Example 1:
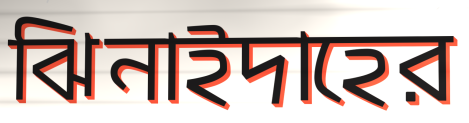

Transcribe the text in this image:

ঝিনাইদাহের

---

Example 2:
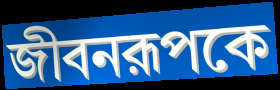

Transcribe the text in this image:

জীবনরূপকে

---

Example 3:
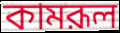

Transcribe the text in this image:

কামরূল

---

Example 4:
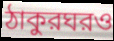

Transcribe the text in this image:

ঠাকুরঘরও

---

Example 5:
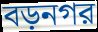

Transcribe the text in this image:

বড়নগর